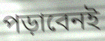
পড়াবেনই